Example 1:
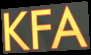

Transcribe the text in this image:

KFA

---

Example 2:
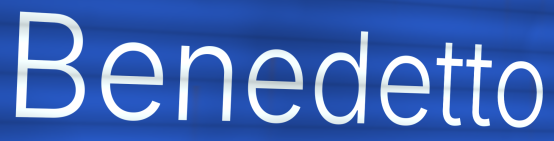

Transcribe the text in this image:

Benedetto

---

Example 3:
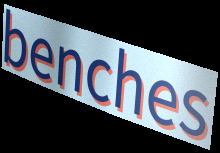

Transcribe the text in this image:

benches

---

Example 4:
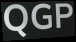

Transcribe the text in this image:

QGP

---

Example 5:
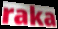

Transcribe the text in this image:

raka